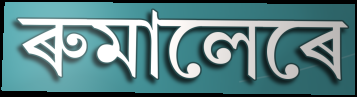
ৰুমালেৰে